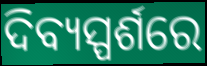
ଦିବ୍ୟସ୍ପର୍ଶରେ